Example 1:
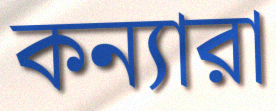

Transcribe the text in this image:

কন্যারা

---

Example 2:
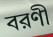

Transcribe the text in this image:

বরণী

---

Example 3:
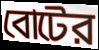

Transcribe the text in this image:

বোটের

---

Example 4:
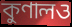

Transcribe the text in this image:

কুণালও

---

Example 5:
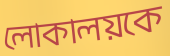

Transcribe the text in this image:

লোকালয়কে